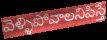
వెళ్ళిపోవాలనిపిస్తే